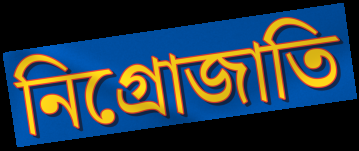
নিগ্রোজাতি